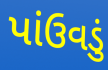
પાંઉવડું